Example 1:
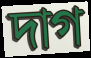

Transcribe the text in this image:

দাগ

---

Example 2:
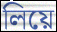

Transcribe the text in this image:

লিয়ে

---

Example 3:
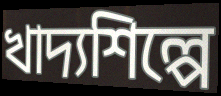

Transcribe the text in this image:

খাদ্যশিল্পে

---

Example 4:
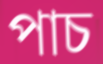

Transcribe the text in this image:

পাচ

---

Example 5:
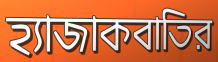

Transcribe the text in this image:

হ্যাজাকবাতির